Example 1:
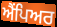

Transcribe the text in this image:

ਐਂਪਿਅਰ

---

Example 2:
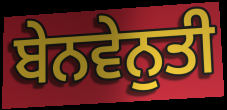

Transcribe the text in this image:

ਬੇਨਵੇਨੁਤੀ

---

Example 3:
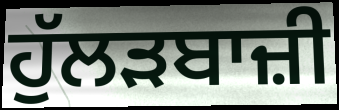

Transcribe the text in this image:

ਹੁੱਲੜਬਾਜ਼ੀ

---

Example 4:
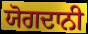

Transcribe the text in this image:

ਯੋਗਦਾਨੀ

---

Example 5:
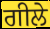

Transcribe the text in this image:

ਗੀਲੇ